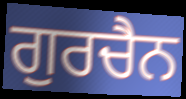
ਗੁਰਚੈਨ